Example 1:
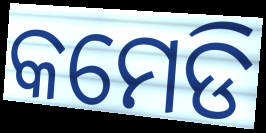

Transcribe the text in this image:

କମେଡି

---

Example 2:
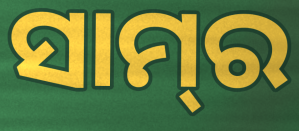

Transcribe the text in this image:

ସାମ୍‌ର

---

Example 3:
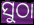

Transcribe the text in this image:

ସୁଠା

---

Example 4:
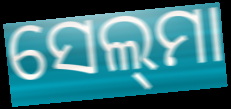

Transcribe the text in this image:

ସେଲ୍‌ମା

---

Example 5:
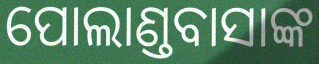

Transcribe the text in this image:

ପୋଲାଣ୍ଡବାସାଙ୍କ